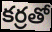
కర్రతో